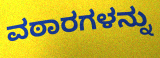
ವಠಾರಗಳನ್ನು